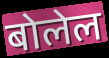
बोलेल